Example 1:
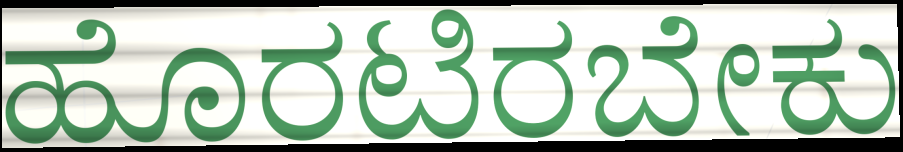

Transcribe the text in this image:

ಹೊರಟಿರಬೇಕು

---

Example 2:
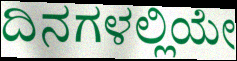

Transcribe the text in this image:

ದಿನಗಳಲ್ಲಿಯೇ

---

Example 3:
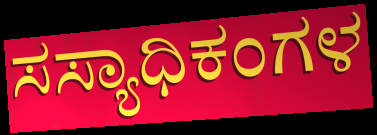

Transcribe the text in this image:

ಸಸ್ಯಾಧಿಕಂಗಳ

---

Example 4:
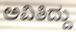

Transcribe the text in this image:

ಅವಿತಿದ್ದು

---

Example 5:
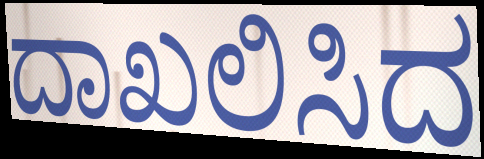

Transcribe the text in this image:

ದಾಖಲಿಸಿದ